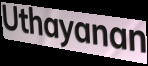
Uthayanan